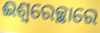
ଈଶ୍ୱରେଚ୍ଛାରେ